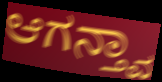
ಆಗನ್ತ್ವಾ